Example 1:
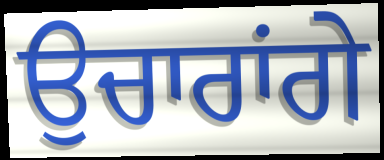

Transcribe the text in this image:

ਉਚਾਰਾਂਗੇ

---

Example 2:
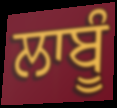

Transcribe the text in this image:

ਲਾਬੂੰ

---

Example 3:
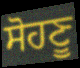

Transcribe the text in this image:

ਸੋਹਣੂ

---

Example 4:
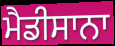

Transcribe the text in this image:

ਮੈਡੀਸਾਨਾ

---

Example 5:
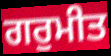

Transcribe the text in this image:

ਗਰੁਮੀਤ